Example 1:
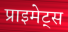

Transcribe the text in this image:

प्राइमेट्स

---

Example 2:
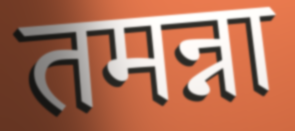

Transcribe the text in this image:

तमन्ना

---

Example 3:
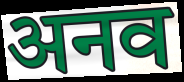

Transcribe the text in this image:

अनव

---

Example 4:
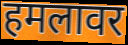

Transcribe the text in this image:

हमलावर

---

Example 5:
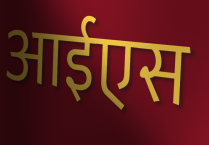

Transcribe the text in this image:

आईएस